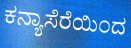
ಕನ್ಯಾಸೆರೆಯಿಂದ